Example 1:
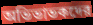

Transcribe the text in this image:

অভিভাভকদের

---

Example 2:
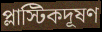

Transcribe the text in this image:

প্লাস্টিকদূষণ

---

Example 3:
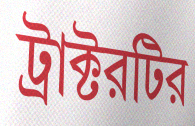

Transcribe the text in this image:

ট্রাক্টরটির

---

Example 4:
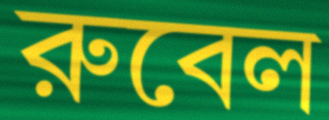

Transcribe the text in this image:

রুবেল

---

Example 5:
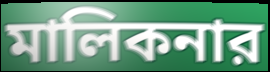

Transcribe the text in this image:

মালিকনার